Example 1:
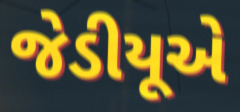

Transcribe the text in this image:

જેડીયૂએ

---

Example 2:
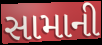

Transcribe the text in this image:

સામાની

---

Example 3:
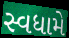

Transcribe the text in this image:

સ્વધામે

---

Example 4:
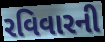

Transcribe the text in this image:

રવિવારની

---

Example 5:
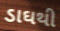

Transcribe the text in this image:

ડાઘથી